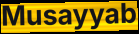
Musayyab